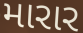
મારાર